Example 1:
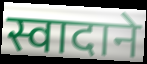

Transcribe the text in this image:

स्वादाने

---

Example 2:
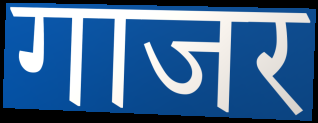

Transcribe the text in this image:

गाजर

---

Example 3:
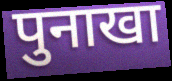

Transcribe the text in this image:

पुनाखा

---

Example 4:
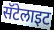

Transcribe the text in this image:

सॅटेलाइट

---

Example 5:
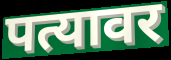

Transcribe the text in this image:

पत्यावर